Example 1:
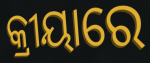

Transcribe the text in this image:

କ୍ରୀୟାରେ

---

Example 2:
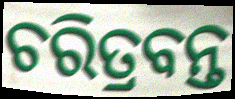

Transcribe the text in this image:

ଚରିତ୍ରବନ୍ତ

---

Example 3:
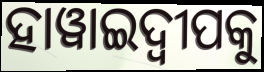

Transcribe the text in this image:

ହାୱାଇଦ୍ଵୀପକୁ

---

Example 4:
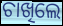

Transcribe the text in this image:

ଚାଖିଲେ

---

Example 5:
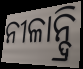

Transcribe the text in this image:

ନୀଳାନ୍ଦ୍ରି